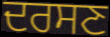
ਦਰਸਣ